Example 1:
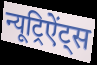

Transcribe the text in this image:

न्यूट्रिऐंट्स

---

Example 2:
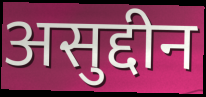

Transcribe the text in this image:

असुद्दीन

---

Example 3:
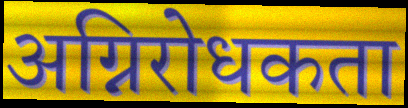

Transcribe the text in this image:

अग्निरोधकता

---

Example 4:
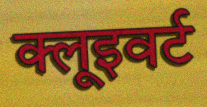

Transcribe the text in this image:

क्लूइवर्ट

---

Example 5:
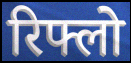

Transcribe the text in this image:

रिफ्लो